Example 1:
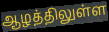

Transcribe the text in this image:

ஆழத்திலுள்ள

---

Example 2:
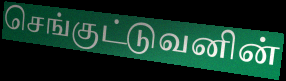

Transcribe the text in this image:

செங்குட்டுவனின்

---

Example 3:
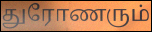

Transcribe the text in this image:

துரோணரும்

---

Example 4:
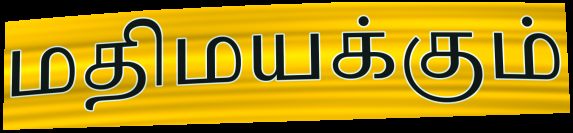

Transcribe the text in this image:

மதிமயக்கும்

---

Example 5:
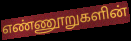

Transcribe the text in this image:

எண்ணூறுகளின்